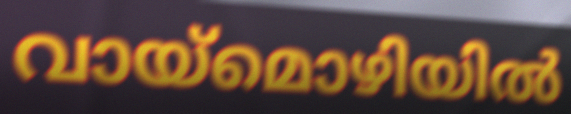
വായ്മൊഴിയിൽ